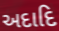
અદાદિ